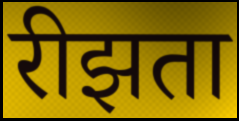
रीझता